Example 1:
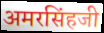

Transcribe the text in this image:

अमरसिंहजी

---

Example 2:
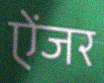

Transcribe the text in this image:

ऐंजर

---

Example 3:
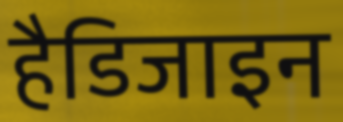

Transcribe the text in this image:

हैडिजाइन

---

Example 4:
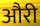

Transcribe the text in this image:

औरी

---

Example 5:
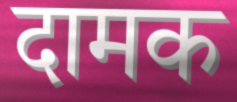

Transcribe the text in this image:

दामक